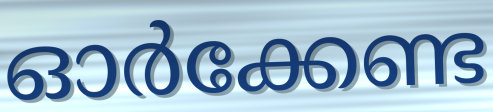
ഓർക്കേണ്ട